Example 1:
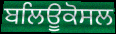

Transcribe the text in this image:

ਬਲਿਊਕੋਸਲ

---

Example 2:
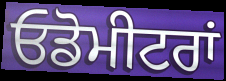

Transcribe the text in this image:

ਓਡੋਮੀਟਰਾਂ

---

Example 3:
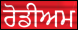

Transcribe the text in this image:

ਰੋਡੀਅਮ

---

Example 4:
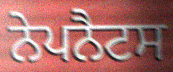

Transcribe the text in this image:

ਨੇਪਨੈਟਸ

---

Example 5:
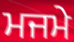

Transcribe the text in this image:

ਮਜਮੇ